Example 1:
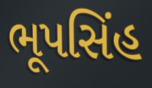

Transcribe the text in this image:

ભૂપસિંહ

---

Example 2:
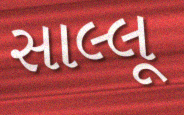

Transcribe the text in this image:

સાલ્લૂ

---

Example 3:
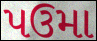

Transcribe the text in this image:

પઉમા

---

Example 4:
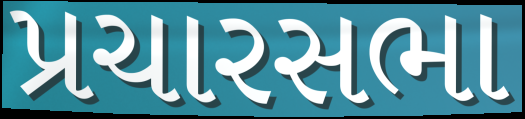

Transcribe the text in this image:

પ્રચારસભા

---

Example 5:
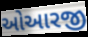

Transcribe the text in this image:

ઓઆરજી